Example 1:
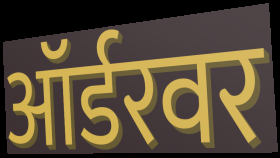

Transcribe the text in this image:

ऑर्डरवर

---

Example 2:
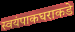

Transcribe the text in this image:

स्वयंपाकघराकडे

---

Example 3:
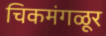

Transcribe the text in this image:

चिकमंगळूर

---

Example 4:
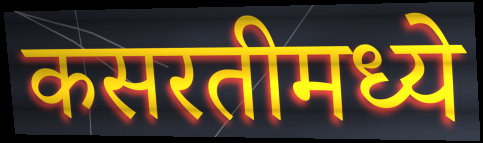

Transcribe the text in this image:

कसरतीमध्ये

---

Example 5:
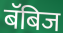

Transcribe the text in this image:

बॅबिज